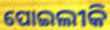
ପୋଇଲୀକି